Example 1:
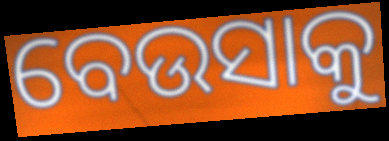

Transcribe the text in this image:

ବେଉସାକୁ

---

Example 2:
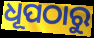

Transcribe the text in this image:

ଧୂପଠାରୁ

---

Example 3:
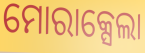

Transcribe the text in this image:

ମୋରାକ୍ସେଲା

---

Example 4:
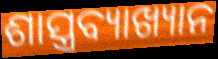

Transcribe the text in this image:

ଶାସ୍ତ୍ରବ୍ୟାଖ୍ୟାନ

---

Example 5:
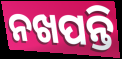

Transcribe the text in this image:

ନଖପନ୍ତି